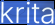
krita